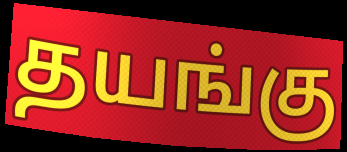
தயங்கு